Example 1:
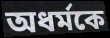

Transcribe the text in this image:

অধর্মকে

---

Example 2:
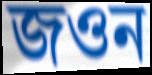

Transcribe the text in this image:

জওন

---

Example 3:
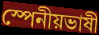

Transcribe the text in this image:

স্পেনীয়ভাষী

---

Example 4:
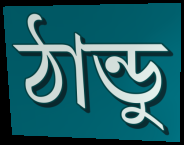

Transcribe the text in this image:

ঠান্ডু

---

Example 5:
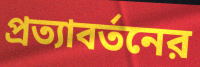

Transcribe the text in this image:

প্রত্যাবর্তনের